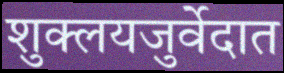
शुक्लयजुर्वेदात